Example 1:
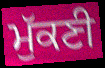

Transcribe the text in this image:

ਮੁੱਕਣੀ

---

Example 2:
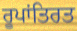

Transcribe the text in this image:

ਰੂਪਾਂਤਿਰਤ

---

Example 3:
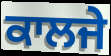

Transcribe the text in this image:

ਕਾਲਜੇ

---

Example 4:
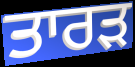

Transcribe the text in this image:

ਤਾਰੜ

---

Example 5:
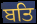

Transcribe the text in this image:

ਬਤਿ